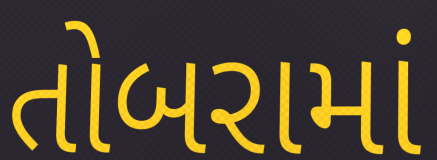
તોબરામાં